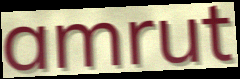
amrut